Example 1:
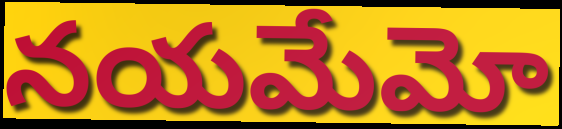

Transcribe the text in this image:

నయమేమో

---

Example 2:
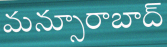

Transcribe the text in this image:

మన్సూరాబాద్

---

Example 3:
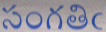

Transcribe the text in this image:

సంగతిఁ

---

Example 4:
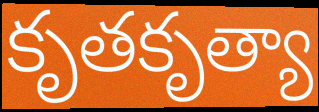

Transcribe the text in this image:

కృతకృత్యా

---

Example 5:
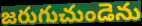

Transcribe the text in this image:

జరుగుచుండెను